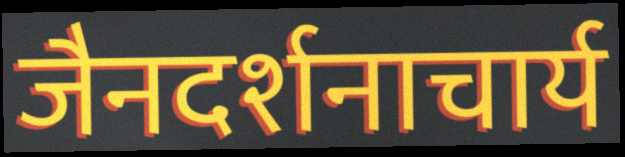
जैनदर्शनाचार्य